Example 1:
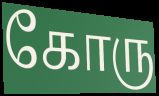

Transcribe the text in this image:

கோரு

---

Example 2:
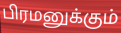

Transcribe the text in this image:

பிரமனுக்கும்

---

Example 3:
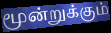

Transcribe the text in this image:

மூன்றுக்கும்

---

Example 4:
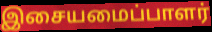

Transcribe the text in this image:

இசையமைப்பாளர்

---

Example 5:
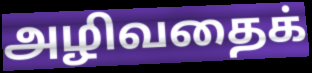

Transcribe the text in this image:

அழிவதைக்